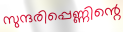
സുന്ദരിപ്പെണ്ണിന്റെ